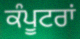
ਕੰਪੂਟਰਾਂ